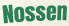
Nossen